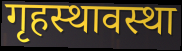
गृहस्थावस्था